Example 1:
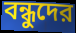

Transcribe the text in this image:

বন্ধুদের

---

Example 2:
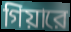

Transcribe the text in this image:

গিয়ারে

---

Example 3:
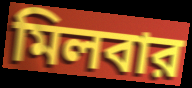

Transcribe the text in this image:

মিলবার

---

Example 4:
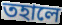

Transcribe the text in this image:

তহালে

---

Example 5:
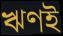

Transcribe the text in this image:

ঋণই